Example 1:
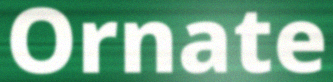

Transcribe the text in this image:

Ornate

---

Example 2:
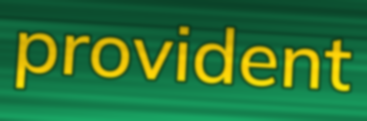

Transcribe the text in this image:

provident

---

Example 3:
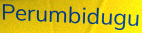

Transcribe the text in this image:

Perumbidugu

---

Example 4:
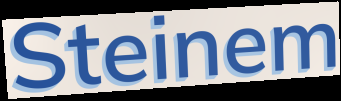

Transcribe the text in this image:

Steinem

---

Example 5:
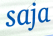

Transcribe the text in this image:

saja